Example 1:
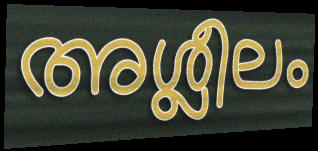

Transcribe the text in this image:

അശ്ലീലം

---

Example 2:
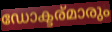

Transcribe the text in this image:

ഡോക്ടര്മാരും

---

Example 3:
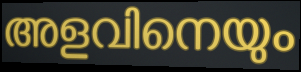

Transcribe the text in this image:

അളവിനെയും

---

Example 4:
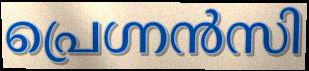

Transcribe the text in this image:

പ്രെഗ്നൻസി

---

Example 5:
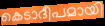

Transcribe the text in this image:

കെടാദീപമായി